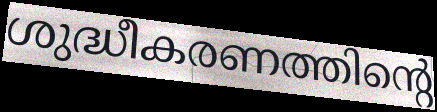
ശുദ്ധീകരണത്തിന്റെ